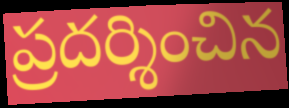
ప్రదర్శించిన